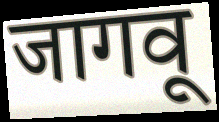
जागवू